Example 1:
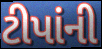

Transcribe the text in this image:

ટીપાંની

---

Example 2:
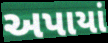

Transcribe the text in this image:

અપાયાં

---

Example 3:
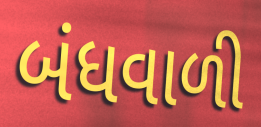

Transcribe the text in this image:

બંધવાળી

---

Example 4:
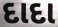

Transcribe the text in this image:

દાદા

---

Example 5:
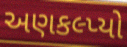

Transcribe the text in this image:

અણકલ્પ્યો